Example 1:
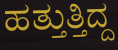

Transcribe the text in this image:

ಹತ್ತುತ್ತಿದ್ದ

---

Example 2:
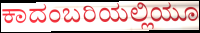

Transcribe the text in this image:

ಕಾದಂಬರಿಯಲ್ಲಿಯೂ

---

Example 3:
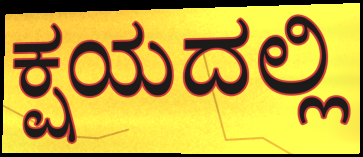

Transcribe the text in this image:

ಕ್ಷಯದಲ್ಲಿ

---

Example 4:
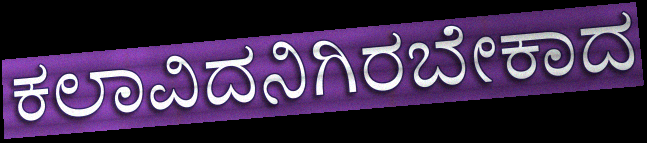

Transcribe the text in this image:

ಕಲಾವಿದನಿಗಿರಬೇಕಾದ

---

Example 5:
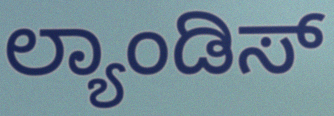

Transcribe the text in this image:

ಲ್ಯಾಂಡಿಸ್